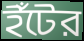
ইঁটের